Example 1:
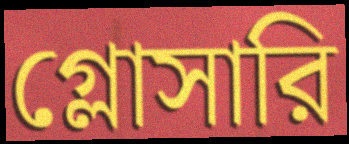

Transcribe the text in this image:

গ্লোসারি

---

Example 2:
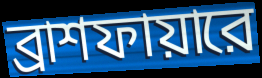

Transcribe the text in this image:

ব্রাশফায়ারে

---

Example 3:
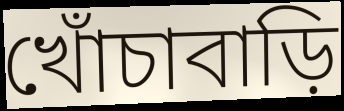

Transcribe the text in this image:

খোঁচাবাড়ি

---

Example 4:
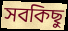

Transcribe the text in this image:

সবকিছু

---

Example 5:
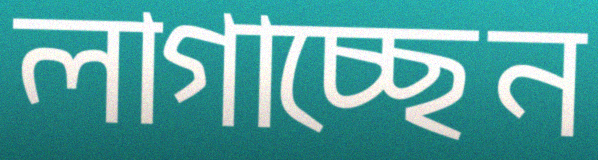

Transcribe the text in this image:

লাগাচ্ছেন